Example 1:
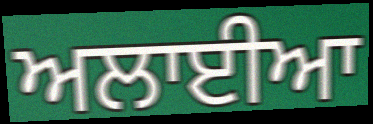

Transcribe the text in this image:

ਅਲਾਈਆ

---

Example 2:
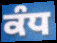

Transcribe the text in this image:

ਕੰਧ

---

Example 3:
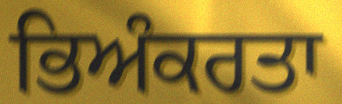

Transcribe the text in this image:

ਭਿਅੰਕਰਤਾ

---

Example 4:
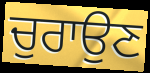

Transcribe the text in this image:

ਚੁਰਾਉਣ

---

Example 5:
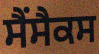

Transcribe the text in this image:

ਸੈਂਸੈਕਸ